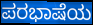
ಪರಭಾಷೆಯ